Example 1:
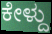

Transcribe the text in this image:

ಕೇಳ್ದು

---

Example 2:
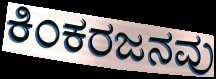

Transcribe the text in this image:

ಕಿಂಕರಜನವು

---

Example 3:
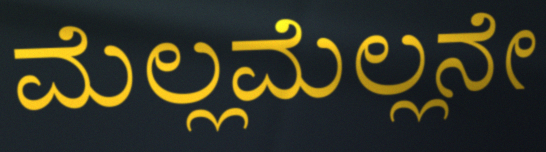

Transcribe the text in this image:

ಮೆಲ್ಲಮೆಲ್ಲನೇ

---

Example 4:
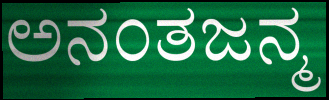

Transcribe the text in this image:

ಅನಂತಜನ್ಮ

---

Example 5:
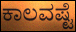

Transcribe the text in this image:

ಕಾಲವಷ್ಟೆ